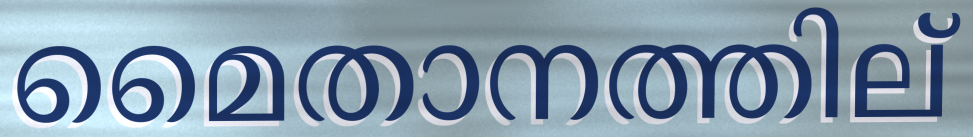
മൈതാനത്തില്